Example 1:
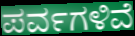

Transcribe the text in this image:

ಪರ್ವಗಳಿವೆ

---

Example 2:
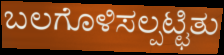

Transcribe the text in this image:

ಬಲಗೊಳಿಸಲ್ಪಟ್ಟಿತು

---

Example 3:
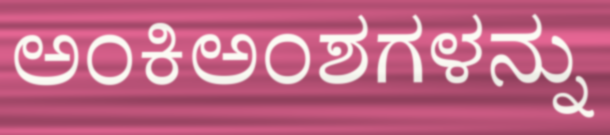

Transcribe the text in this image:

ಅಂಕಿಅಂಶಗಳನ್ನು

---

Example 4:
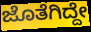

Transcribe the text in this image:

ಜೊತೆಗಿದ್ದೇ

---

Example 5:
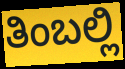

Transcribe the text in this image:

ತಿಂಬಲ್ಲಿ